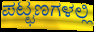
ಪಟ್ಟಣಗಳಲ್ಲಿ